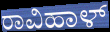
ರಾವಿಹಾಳ್